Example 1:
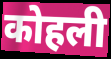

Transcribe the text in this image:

कोहली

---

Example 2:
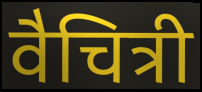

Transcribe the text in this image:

वैचित्री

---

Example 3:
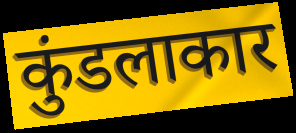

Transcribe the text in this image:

कुंडलाकार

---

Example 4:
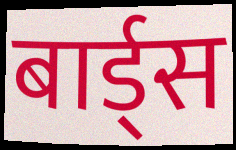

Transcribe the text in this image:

बार्ड्स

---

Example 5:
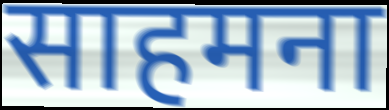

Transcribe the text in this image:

साहमना